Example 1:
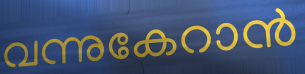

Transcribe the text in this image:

വന്നുകേറാൻ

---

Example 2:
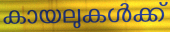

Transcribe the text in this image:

കായലുകൾക്ക്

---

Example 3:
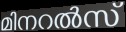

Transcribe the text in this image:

മിനറൽസ്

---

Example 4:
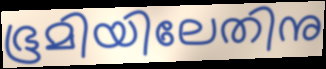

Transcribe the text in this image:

ഭൂമിയിലേതിനു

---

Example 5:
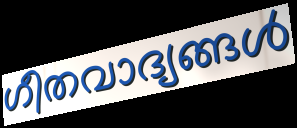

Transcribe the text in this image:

ഗീതവാദ്യങ്ങൾ